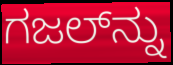
ಗಜಲ್‍ನ್ನು